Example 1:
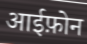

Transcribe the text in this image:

आईफ़ोन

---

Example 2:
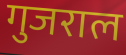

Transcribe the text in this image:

गुजराल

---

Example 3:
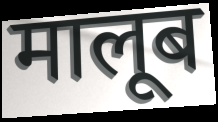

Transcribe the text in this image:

मालूब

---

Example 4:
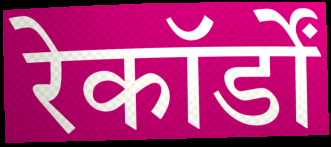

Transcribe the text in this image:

रेकॉर्डों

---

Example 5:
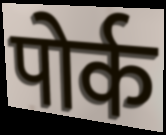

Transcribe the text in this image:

पोर्क